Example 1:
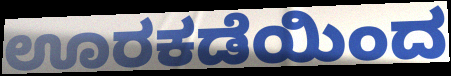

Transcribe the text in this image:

ಊರಕಡೆಯಿಂದ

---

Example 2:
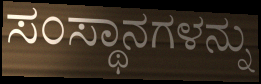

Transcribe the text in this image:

ಸಂಸ್ಥಾನಗಳನ್ನು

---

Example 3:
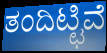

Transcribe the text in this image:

ತಂದಿಟ್ಟಿವೆ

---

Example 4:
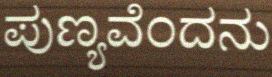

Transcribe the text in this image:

ಪುಣ್ಯವೆಂದನು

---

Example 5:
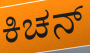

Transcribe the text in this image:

ಕಿಚನ್